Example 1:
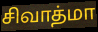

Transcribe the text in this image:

சிவாத்மா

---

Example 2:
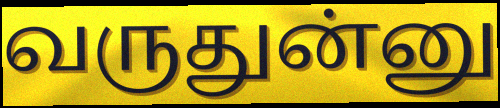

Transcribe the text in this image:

வருதுன்னு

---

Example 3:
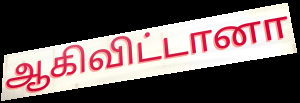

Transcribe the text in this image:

ஆகிவிட்டானா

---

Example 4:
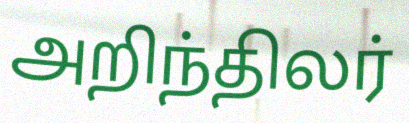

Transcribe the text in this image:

அறிந்திலர்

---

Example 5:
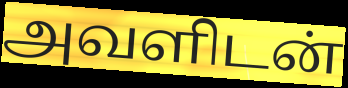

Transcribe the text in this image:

அவளிடன்